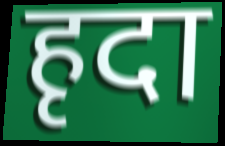
हृदा